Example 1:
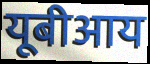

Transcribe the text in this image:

यूबीआय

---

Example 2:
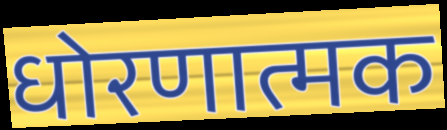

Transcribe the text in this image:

धोरणात्मक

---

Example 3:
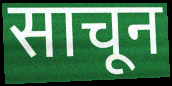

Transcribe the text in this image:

साचून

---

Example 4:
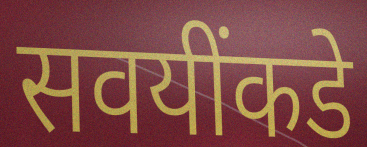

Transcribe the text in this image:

सवयींकडे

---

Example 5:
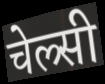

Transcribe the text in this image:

चेल्सी